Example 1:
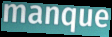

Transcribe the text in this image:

manque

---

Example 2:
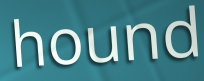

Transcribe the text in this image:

hound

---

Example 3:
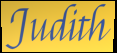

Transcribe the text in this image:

Judith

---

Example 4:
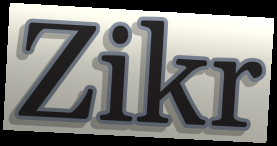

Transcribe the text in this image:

Zikr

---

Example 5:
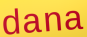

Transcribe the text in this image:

dana